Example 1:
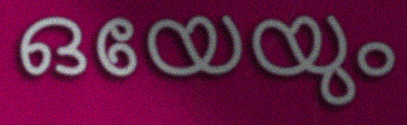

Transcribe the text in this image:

ഒയേയും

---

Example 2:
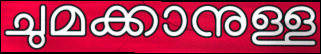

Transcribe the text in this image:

ചുമക്കാനുള്ള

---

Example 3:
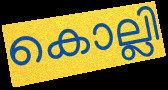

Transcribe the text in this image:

കൊല്ലി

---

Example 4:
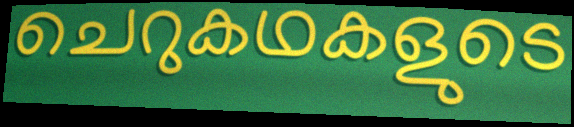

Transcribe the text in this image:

ചെറുകഥകളുടെ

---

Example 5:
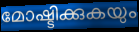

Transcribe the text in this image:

മോഷ്ടിക്കുകയും